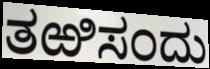
ತಱಿಸಂದು